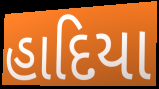
હાદિયા